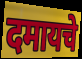
दमायचे